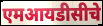
एमआयडीसीचे